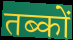
तब्कों